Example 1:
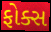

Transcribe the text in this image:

ફોક્સ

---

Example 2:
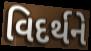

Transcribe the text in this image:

વિદર્થને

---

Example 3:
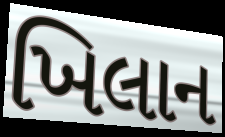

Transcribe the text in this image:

ખિલાન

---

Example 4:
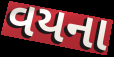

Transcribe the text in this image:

વયના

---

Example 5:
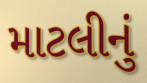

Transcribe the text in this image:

માટલીનું